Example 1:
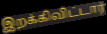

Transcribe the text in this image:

இறக்கிவிட்டார்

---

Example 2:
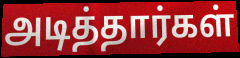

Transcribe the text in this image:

அடித்தார்கள்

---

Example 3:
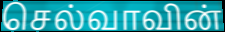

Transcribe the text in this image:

செல்வாவின்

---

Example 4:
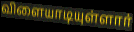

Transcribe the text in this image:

விளையாடியுள்ளார்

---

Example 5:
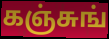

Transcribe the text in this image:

கஞ்சுங்